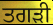
ਤਗੜੀ